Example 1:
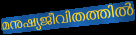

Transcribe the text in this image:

മനുഷ്യജീവിതത്തിൽ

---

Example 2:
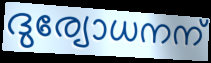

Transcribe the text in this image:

ദുര്യോധനന്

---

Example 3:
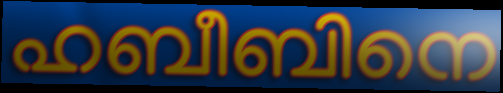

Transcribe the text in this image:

ഹബീബിനെ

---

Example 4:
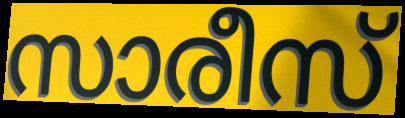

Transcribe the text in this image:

സാരീസ്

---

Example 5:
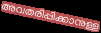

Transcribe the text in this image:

അവതരിപ്പിക്കാനുള്ള